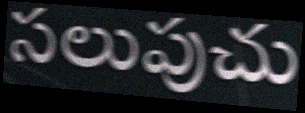
సలుపుచు